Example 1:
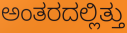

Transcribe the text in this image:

ಅಂತರದಲ್ಲಿತ್ತು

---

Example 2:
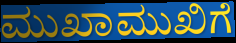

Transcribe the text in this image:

ಮುಖಾಮುಖಿಗೆ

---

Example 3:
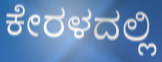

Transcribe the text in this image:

ಕೇರಳದಲ್ಲಿ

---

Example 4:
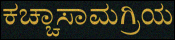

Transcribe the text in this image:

ಕಚ್ಚಾಸಾಮಗ್ರಿಯ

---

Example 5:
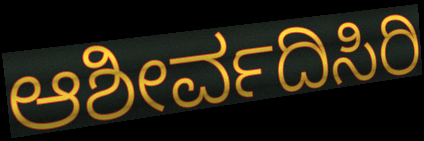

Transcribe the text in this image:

ಆಶೀರ್ವದಿಸಿರಿ